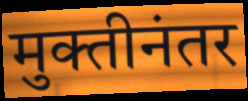
मुक्तीनंतर